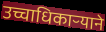
उच्चाधिकाऱ्याने